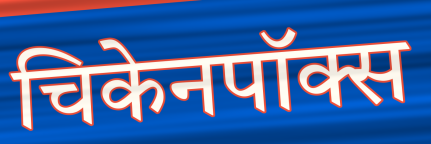
चिकेनपॉक्स